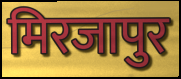
मिरजापुर